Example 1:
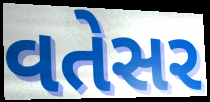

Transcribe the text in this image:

વતેસર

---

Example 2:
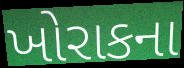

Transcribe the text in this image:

ખોરાકના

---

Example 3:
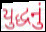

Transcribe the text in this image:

યુદ્ધનું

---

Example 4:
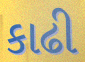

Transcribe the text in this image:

કાઢી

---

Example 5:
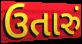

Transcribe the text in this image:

ઉતારું